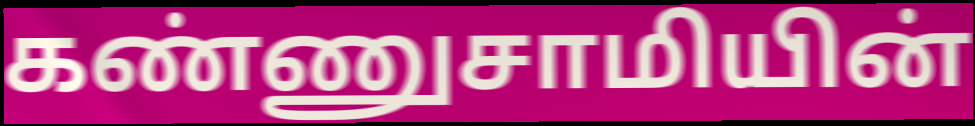
கண்ணுசாமியின்